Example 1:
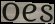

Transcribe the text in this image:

oes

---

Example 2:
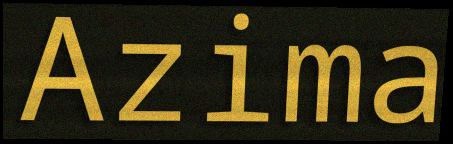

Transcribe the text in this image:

Azima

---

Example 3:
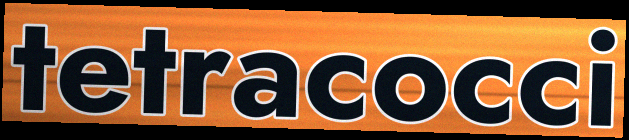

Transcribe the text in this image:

tetracocci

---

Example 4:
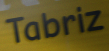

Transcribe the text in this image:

Tabriz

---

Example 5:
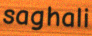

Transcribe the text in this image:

saghali